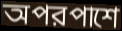
অপরপাশে